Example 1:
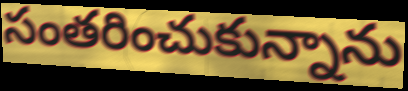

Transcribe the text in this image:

సంతరించుకున్నాను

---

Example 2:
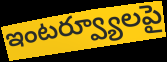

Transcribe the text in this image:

ఇంటర్వ్యూలపై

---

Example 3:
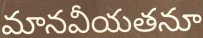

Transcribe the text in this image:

మానవీయతనూ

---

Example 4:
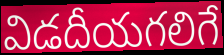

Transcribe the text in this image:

విడదీయగలిగే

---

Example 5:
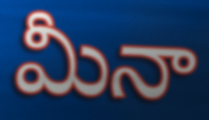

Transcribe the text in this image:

మీనా